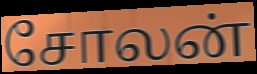
சோலன்